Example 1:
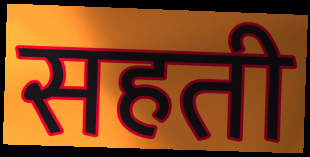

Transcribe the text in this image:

सहती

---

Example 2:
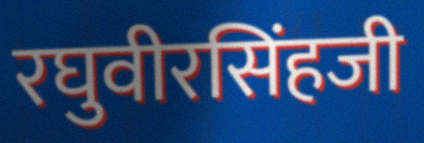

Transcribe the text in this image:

रघुवीरसिंहजी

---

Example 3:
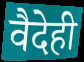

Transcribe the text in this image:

वैदेही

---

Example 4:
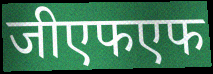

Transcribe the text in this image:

जीएफएफ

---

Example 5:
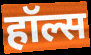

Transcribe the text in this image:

हॉल्स